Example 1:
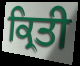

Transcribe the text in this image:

ਕ੍ਰਿਤੀ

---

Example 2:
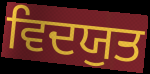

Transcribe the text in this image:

ਵਿਦਯੁਤ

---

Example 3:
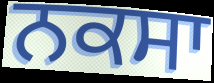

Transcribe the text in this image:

ਨਕਸਾ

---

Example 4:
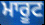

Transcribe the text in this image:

ਮਾਰੂਟ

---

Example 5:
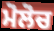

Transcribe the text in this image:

ਮੋਲੋਚ